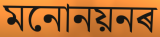
মনোনয়নৰ